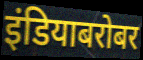
इंडियाबरोबर